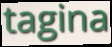
tagina